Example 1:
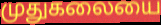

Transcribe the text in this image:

முதுகலையை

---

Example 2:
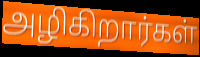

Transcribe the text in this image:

அழிகிறார்கள்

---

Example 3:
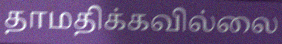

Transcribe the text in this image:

தாமதிக்கவில்லை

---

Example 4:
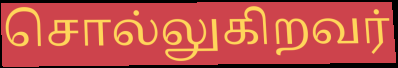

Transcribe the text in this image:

சொல்லுகிறவர்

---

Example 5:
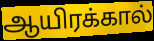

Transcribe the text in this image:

ஆயிரக்கால்